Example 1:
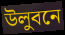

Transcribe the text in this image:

উলুবনে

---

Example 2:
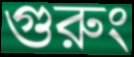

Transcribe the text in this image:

গুরুং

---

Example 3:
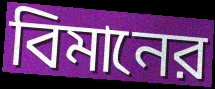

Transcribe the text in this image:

বিমানের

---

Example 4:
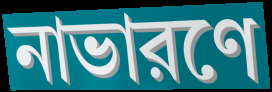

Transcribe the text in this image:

নাভারণে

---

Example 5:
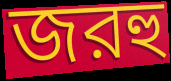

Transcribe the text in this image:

জরহু